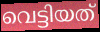
വെട്ടിയത്